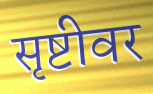
सृष्टीवर